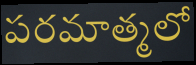
పరమాత్మలో